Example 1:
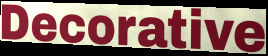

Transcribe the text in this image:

Decorative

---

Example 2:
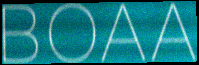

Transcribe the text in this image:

BOAA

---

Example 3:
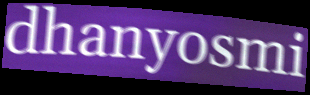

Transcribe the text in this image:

dhanyosmi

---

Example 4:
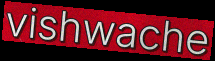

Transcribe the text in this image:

vishwache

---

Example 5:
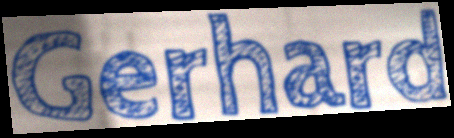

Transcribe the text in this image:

Gerhard